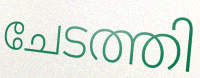
ചേടത്തി